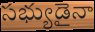
సభ్యుడైనా